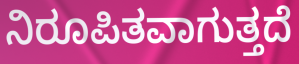
ನಿರೂಪಿತವಾಗುತ್ತದೆ